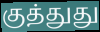
குத்துது